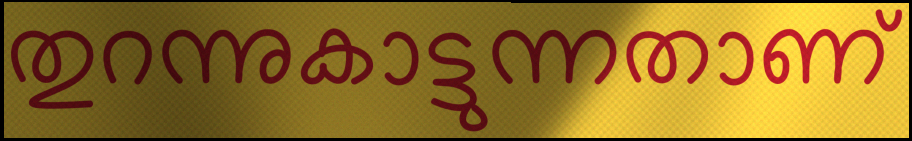
തുറന്നുകാട്ടുന്നതാണ്